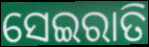
ସେଇରାତି